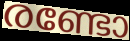
രണ്ടോ